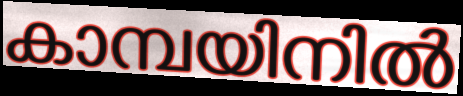
കാമ്പയിനിൽ